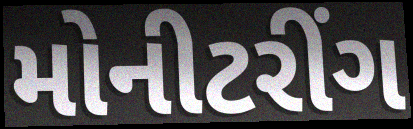
મોનીટરીંગ